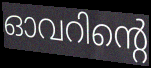
ഓവറിന്റെ